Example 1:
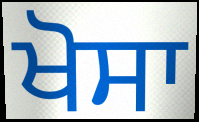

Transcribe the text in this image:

ਖੋਸਾ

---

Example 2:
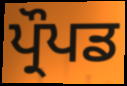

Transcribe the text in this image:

ਪ੍ਰੌਪਡ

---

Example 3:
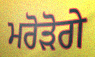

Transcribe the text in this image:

ਮਰੋੜੋਗੇ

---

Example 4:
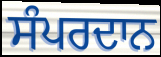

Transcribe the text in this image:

ਸੰਪਰਦਾਨ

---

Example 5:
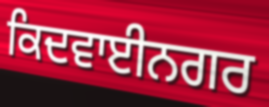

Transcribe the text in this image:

ਕਿਦਵਾਈਨਗਰ